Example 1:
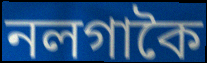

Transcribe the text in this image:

নলগাকৈ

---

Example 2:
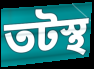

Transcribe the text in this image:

তটস্থ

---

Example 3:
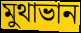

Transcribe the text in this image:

মুথাভান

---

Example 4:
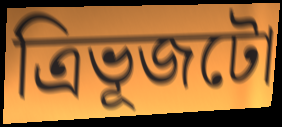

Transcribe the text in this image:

ত্ৰিভূজটো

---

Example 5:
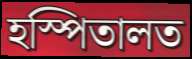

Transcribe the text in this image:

হস্পিতালত